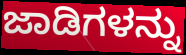
ಜಾಡಿಗಳನ್ನು